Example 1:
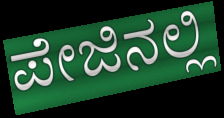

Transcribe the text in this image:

ಪೇಜಿನಲ್ಲಿ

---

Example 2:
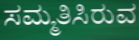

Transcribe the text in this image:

ಸಮ್ಮತಿಸಿರುವ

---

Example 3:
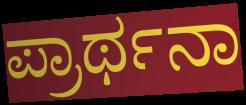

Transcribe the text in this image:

ಪ್ರಾರ್ಥನಾ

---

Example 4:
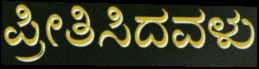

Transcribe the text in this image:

ಪ್ರೀತಿಸಿದವಳು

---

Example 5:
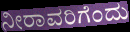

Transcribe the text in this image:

ನೀರಾವರಿಗೆಂದು